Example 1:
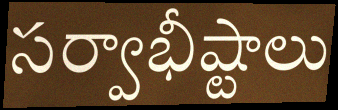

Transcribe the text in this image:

సర్వాభీష్టాలు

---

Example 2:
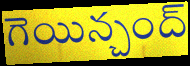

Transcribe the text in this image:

గెయిన్చంద్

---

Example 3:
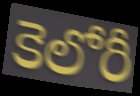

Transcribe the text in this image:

కెలోరీ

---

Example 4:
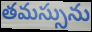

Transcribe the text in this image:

తమస్సును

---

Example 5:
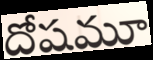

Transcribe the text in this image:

దోషమూ